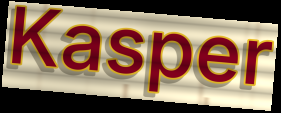
Kasper